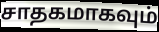
சாதகமாகவும்